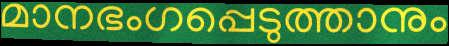
മാനഭംഗപ്പെടുത്താനും